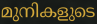
മുനികളുടെ